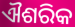
ଐଶରିକ